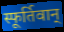
स्फूर्तिवान्